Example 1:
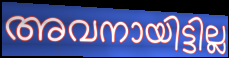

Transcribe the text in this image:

അവനായിട്ടില്ല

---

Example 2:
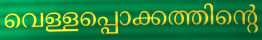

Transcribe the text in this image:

വെള്ളപ്പൊക്കത്തിന്റെ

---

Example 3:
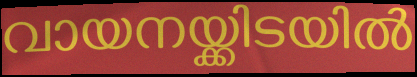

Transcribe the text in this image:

വായനയ്ക്കിടയിൽ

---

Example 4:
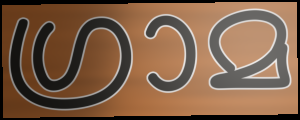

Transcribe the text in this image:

ഗ്രാമ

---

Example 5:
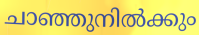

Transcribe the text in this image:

ചാഞ്ഞുനിൽക്കും